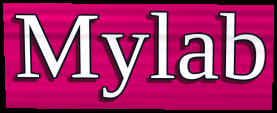
Mylab